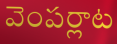
వెంపర్లాట